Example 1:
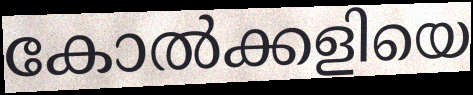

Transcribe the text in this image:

കോൽക്കളിയെ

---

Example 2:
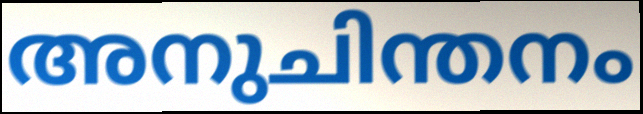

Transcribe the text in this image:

അനുചിന്തനം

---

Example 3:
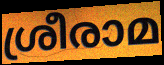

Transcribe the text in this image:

ശ്രീരാമ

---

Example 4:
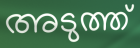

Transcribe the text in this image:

അടുത്ത്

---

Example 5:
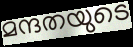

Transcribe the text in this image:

മന്ദതയുടെ